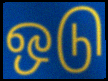
ஒடு